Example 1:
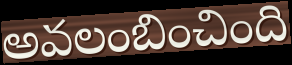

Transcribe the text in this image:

అవలంబించింది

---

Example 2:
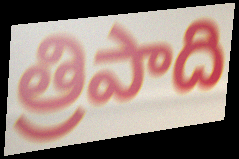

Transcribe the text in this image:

త్రిపాది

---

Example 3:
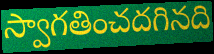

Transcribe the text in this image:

స్వాగతించదగినది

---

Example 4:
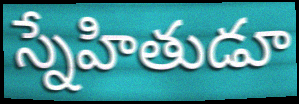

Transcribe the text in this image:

స్నేహితుడూ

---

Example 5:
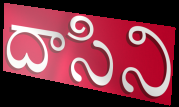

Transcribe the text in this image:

దాసిని